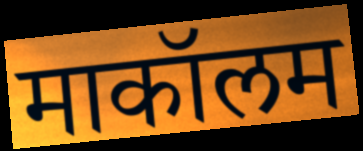
माकॉलम